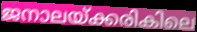
ജനാലയ്ക്കരികിലെ